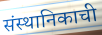
संस्थानिकाची